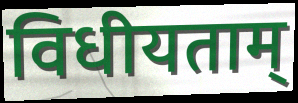
विधीयताम्